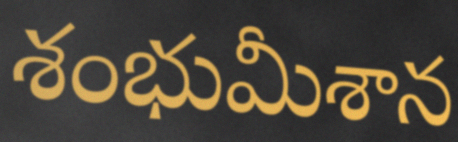
శంభుమీశాన